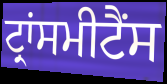
ਟ੍ਰਾਂਸਮੀਟੈਂਸ